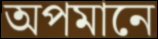
অপমানে